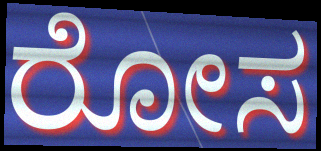
ರೋಸ